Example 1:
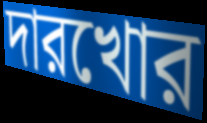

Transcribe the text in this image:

দারখোর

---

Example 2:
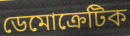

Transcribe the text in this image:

ডেমোক্রেটিক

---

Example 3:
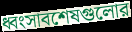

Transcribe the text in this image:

ধ্বংসাবশেষগুলোর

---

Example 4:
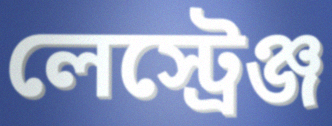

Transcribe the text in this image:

লেস্ট্রেঞ্জ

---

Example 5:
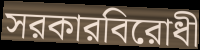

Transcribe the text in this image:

সরকারবিরোধী